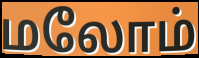
மலோம்